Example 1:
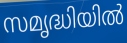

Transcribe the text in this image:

സമൃദ്ധിയിൽ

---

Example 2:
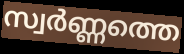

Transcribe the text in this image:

സ്വർണ്ണത്തെ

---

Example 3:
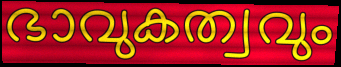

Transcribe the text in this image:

ഭാവുകത്വവും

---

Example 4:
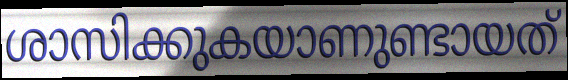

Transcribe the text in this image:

ശാസിക്കുകയാണുണ്ടായത്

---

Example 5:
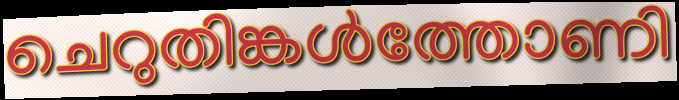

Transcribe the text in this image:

ചെറുതിങ്കൾത്തോണി